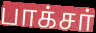
பாக்சர்